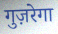
गुज़रेगा